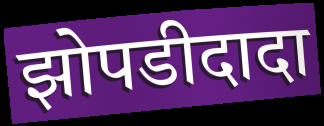
झोपडीदादा